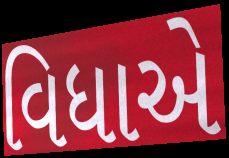
વિધાએ